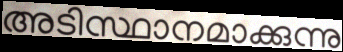
അടിസ്ഥാനമാക്കുന്നു